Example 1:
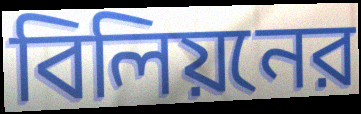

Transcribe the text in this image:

বিলিয়নের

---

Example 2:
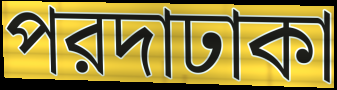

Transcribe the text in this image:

পরদাঢাকা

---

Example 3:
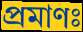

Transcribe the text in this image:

প্রমাণঃ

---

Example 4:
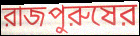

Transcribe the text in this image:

রাজপুরুষের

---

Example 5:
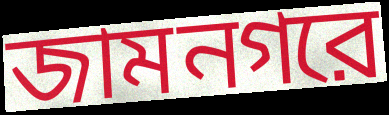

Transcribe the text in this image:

জামনগরে